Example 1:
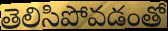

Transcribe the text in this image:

తెలిసిపోవడంతో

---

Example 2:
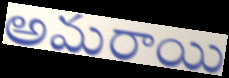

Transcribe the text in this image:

అమరాయి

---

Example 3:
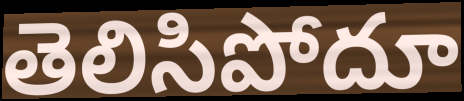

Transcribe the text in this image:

తెలిసిపోదూ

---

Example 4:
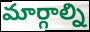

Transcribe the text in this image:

మార్గాల్ని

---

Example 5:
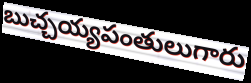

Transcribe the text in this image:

బుచ్చయ్యపంతులుగారు